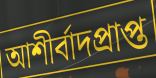
আশীর্বাদপ্রাপ্ত